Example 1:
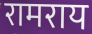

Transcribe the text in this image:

रामराय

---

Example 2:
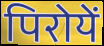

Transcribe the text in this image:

पिरोयें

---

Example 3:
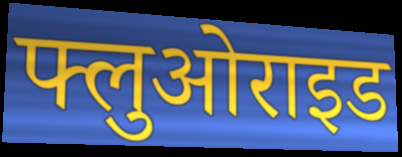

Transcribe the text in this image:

फ्लुओराइड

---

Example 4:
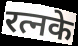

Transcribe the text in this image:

रत्नके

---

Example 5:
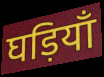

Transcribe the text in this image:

घड़ियाँ